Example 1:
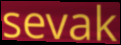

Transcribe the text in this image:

sevak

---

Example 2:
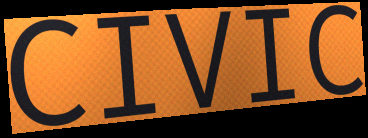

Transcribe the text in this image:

CIVIC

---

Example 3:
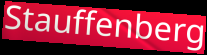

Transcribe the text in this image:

Stauffenberg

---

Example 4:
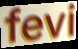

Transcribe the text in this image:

fevi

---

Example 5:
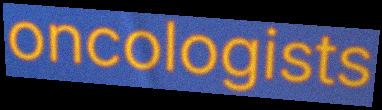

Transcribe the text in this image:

oncologists